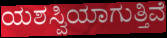
ಯಶಸ್ವಿಯಾಗುತ್ತಿವೆ